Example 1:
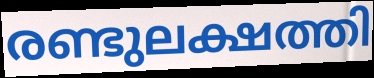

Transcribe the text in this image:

രണ്ടുലക്ഷത്തി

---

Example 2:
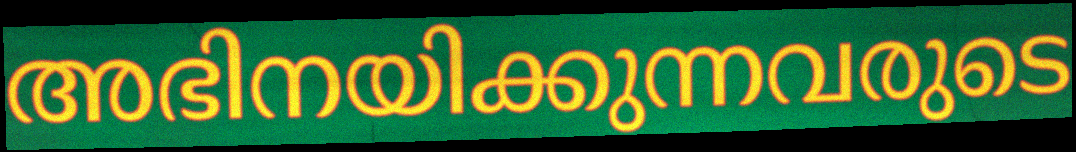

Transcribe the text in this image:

അഭിനയിക്കുന്നവരുടെ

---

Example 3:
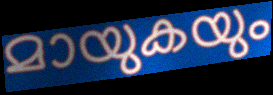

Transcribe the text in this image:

മായുകയും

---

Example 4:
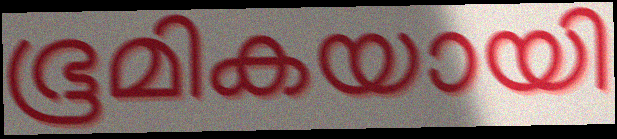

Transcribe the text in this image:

ഭൂമികയായി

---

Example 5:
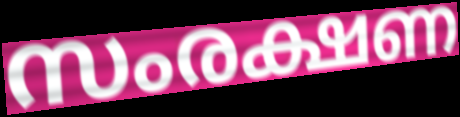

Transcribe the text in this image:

സംരക്ഷണ